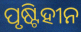
ପୃଷ୍ଟିହୀନ